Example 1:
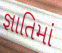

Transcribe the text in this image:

જ્ઞાતિમાં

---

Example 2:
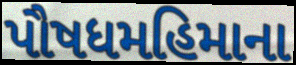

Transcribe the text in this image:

પૌષધમહિમાના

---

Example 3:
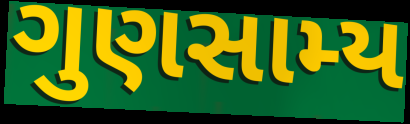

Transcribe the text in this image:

ગુણસામ્ય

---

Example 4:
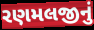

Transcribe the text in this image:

રણમલજીનું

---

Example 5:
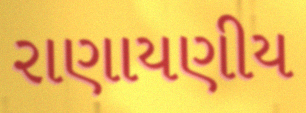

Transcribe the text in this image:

રાણાયણીય